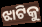
ଝାଟିକୁ